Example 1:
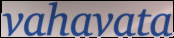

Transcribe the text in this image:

vahavata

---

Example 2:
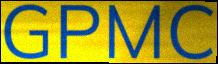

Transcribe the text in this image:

GPMC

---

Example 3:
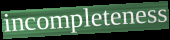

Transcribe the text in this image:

incompleteness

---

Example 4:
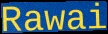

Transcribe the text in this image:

Rawai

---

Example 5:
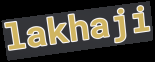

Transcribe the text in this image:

lakhaji